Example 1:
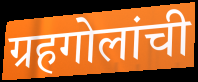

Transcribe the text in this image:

ग्रहगोलांची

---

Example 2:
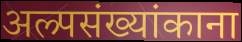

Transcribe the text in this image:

अल्पसंख्यांकाना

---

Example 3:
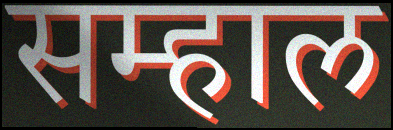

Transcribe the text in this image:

सम्हाल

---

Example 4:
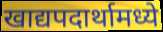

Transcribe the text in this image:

खाद्यपदार्थामध्ये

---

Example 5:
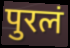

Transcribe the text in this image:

पुरलं